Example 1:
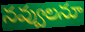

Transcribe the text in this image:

నవ్వులనూ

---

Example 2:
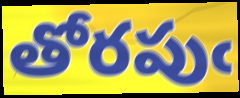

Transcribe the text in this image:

తోరపుఁ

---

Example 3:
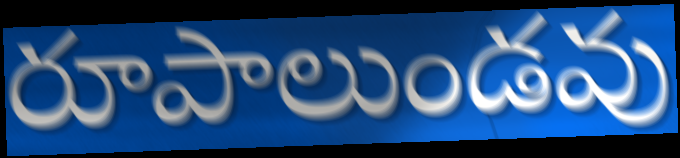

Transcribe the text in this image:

రూపాలుండవు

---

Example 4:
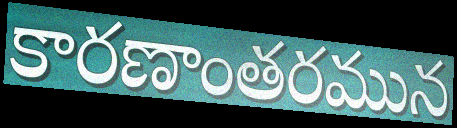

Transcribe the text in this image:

కారణాంతరమున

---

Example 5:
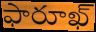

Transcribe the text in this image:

ఫారూఖ్